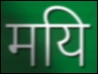
मयि